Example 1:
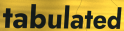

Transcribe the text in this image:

tabulated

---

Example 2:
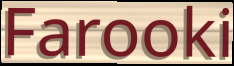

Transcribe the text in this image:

Farooki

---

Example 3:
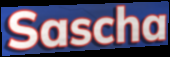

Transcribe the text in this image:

Sascha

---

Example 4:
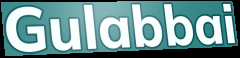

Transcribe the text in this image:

Gulabbai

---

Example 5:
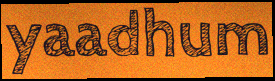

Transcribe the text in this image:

yaadhum